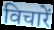
विचारें